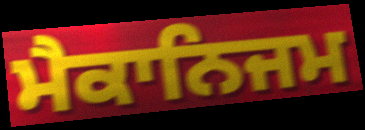
ਮੈਕਾਨਿਜਮ